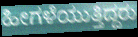
ಹೀಗಳೆಯುತ್ತಿದ್ದರು